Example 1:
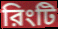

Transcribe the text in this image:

রিংটি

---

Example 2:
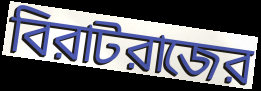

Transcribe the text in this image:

বিরাটরাজের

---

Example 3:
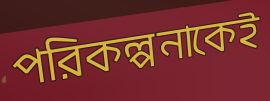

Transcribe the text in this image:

পরিকল্পনাকেই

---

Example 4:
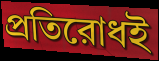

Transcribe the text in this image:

প্রতিরোধই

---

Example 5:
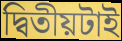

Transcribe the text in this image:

দ্বিতীয়টাই